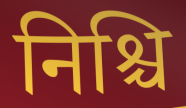
निश्चि